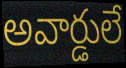
అవార్డులే